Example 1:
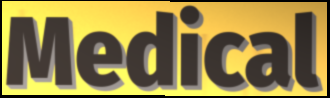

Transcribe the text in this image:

Medical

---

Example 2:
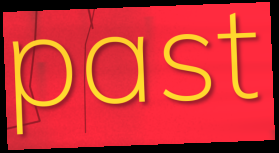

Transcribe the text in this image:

past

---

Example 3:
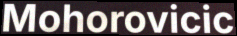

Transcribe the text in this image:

Mohorovicic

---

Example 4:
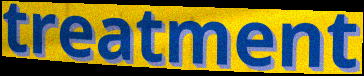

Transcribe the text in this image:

treatment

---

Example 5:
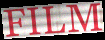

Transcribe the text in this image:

FILM